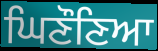
ਘਿਣੌਣਿਆ